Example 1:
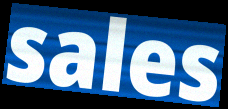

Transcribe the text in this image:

sales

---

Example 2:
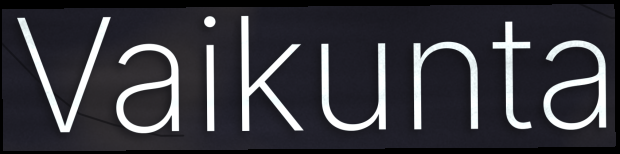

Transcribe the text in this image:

Vaikunta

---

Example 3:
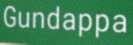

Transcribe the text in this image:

Gundappa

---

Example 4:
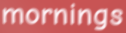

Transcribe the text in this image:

mornings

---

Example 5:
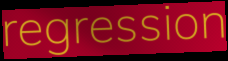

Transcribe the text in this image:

regression